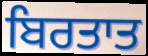
ਬਿਰਤਾਤ